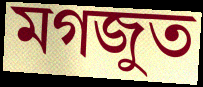
মগজুত